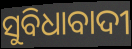
ସୁବିଧାବାଦୀ